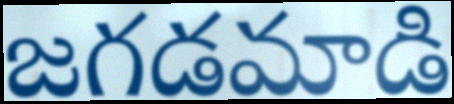
జగడమాడి